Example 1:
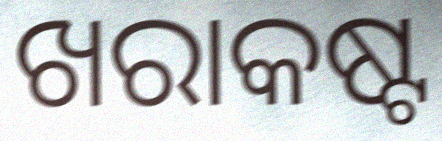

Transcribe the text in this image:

ଖରାକଷ୍ଟ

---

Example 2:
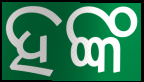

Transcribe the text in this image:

ହଙ୍କ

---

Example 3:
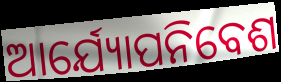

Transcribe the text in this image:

ଆର୍ଯ୍ୟୋପନିବେଶ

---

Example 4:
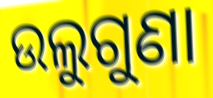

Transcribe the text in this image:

ଉଲୁଗୁଣା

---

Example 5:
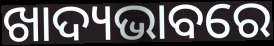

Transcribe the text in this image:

ଖାଦ୍ୟଭାବରେ